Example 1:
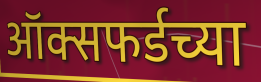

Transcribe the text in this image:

ऑक्सफर्डच्या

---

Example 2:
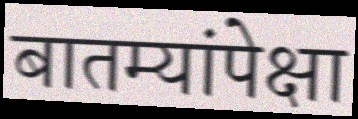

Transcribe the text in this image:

बातम्यांपेक्षा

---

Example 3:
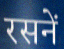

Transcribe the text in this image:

रसनें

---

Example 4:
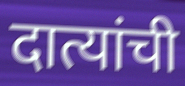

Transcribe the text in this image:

दात्यांची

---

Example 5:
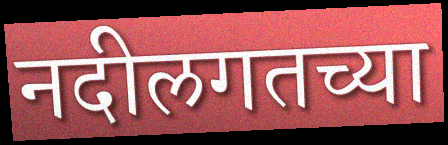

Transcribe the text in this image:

नदीलगतच्या